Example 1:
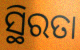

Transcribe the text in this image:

ସ୍ଥିରତା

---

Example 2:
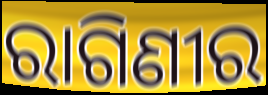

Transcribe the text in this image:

ରାଗିଣୀର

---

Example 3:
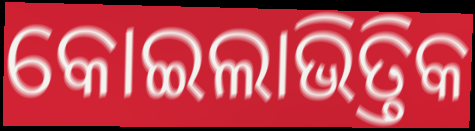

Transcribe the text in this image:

କୋଇଲାଭିତ୍ତିକ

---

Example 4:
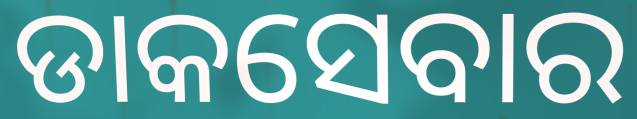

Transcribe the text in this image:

ଡାକସେବାର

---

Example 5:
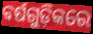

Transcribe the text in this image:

ବର୍ଷଗୁଡ଼ିକରେ